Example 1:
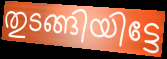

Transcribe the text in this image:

തുടങ്ങിയിട്ടേ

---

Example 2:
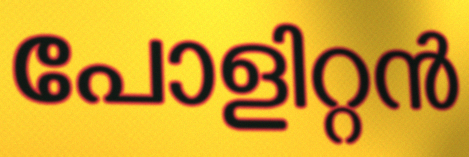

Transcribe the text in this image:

പോളിറ്റൻ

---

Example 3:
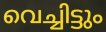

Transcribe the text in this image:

വെച്ചിട്ടും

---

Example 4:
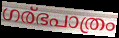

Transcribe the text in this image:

ഗര്ഭപാത്രം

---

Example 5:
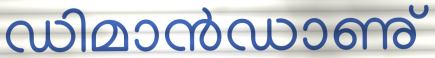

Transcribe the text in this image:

ഡിമാൻഡാണു്